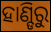
ହାଣ୍ଡିରୁ